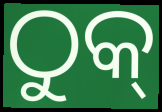
ଠୁକ୍